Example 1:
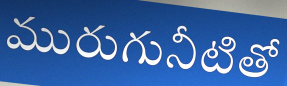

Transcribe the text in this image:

మురుగునీటితో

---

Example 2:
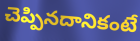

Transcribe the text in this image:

చెప్పినదానికంటే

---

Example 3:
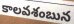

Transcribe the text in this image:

కాలవశంబున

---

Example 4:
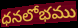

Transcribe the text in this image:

ధనలోభము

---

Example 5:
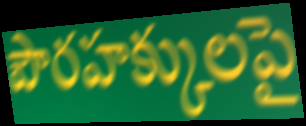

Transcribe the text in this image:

పౌరహక్కులపై